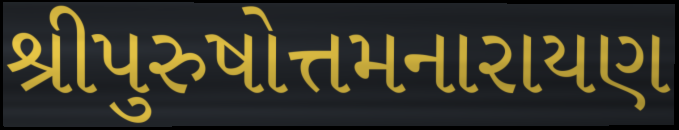
શ્રીપુરુષોત્તમનારાયણ